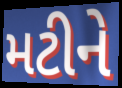
મટીને